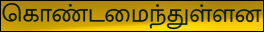
கொண்டமைந்துள்ளன